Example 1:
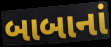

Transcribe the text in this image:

બાબાનાં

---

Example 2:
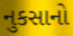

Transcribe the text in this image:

નુકસાનો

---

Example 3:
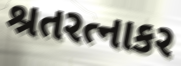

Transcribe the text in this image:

શ્રતરત્નાકર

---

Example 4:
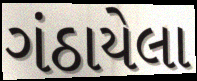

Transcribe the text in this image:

ગંઠાયેલા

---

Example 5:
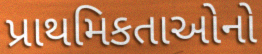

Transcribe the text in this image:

પ્રાથમિકતાઓનો